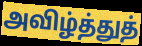
அவிழ்த்துத்